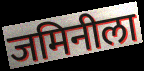
जमिनीला